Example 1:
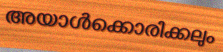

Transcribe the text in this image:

അയാൾക്കൊരിക്കലും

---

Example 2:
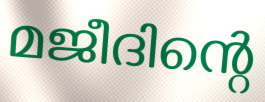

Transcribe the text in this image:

മജീദിന്റെ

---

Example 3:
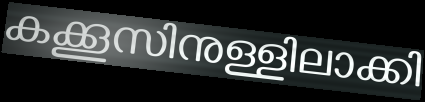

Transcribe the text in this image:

കക്കൂസിനുള്ളിലാക്കി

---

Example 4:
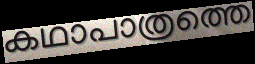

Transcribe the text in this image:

കഥാപാത്രത്തെ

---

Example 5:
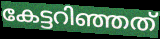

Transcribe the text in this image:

കേട്ടറിഞ്ഞത്